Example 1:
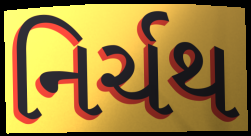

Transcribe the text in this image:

નિર્ચથ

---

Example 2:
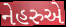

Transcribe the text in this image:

નેહરુએ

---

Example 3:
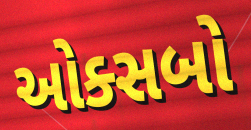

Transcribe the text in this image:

ઓક્સબો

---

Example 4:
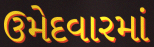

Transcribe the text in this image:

ઉમેદવારમાં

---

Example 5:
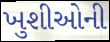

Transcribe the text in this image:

ખુશીઓની